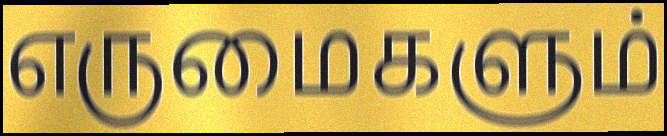
எருமைகளும்